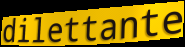
dilettante